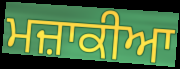
ਮਜ਼ਾਕੀਆ